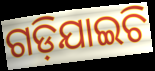
ଗଡ଼ିଯାଇଚି